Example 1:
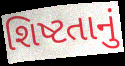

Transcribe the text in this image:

શિષ્ટતાનું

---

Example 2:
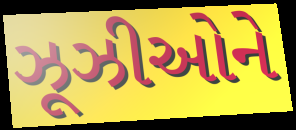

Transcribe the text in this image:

ઝૂઝીઓને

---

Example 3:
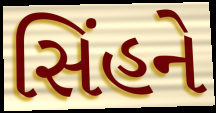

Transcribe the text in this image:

સિંહને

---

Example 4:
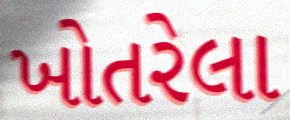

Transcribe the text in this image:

ખોતરેલા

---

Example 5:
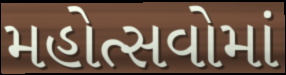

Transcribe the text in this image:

મહોત્સવોમાં